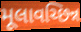
મૂલાવચ્છિન્ન